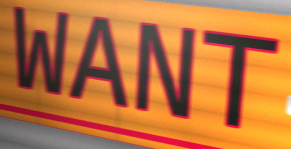
WANT